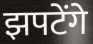
झपटेंगे